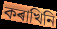
কৰাখিনি